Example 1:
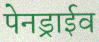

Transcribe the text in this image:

पेनड्राईव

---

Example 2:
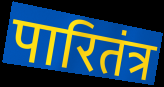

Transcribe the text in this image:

पारितंत्र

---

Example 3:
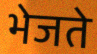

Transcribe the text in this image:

भेजते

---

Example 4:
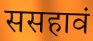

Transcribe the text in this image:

ससहावं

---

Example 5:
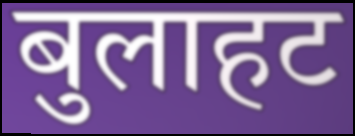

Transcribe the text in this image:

बुलाहट